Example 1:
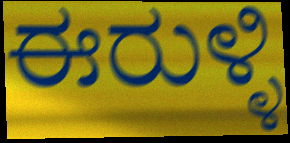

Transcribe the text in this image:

ಈರುಳ್ಳಿ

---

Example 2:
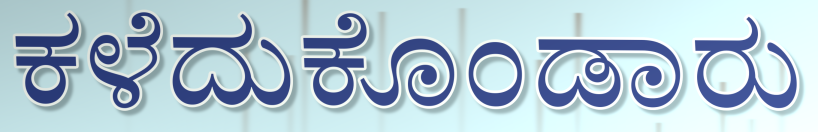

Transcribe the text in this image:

ಕಳೆದುಕೊಂಡಾರು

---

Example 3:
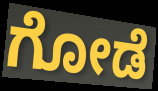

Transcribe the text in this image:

ಗೋಡೆ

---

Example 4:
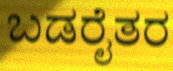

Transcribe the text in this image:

ಬಡರೈತರ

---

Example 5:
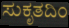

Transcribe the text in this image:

ಸುಕೃತದಿಂ